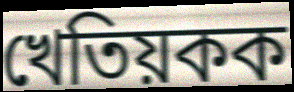
খেতিয়কক